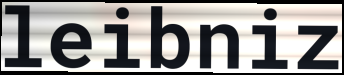
leibniz